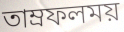
তাম্রফলময়